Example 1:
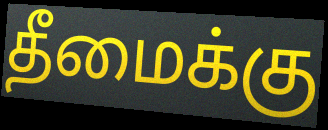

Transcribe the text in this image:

தீமைக்கு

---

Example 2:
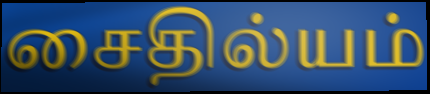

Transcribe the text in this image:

சைதில்யம்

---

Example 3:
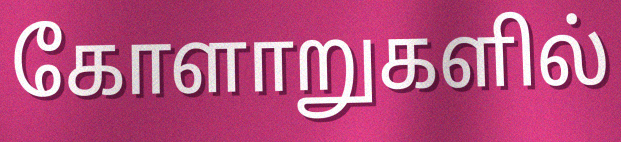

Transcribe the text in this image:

கோளாறுகளில்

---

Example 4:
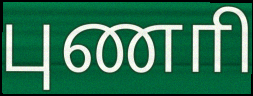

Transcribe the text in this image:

புணரி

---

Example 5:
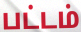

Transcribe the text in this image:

பட்டம்